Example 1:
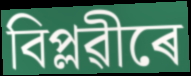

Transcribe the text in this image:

বিপ্লৱীৰে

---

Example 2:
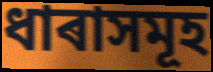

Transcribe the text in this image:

ধাৰাসমূহ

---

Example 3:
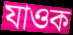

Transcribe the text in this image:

যাওক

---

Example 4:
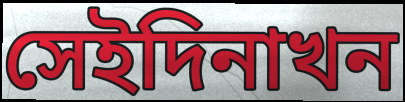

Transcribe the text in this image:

সেইদিনাখন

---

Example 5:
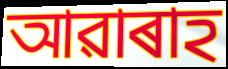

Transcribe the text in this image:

আৱাৰাহ